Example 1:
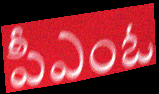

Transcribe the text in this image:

పీఎంఓ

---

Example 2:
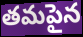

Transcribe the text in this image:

తమపైన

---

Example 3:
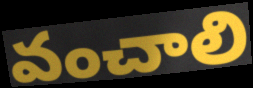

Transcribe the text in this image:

వంచాలి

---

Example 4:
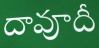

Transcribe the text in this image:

దావూదీ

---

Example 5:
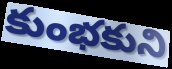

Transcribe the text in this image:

కుంభకుని